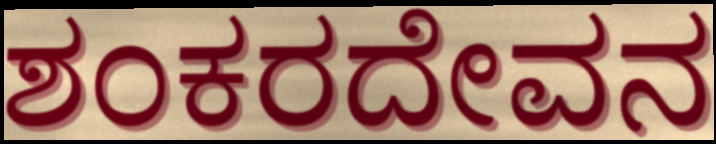
ಶಂಕರದೇವನ